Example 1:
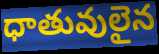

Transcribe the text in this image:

ధాతువులైన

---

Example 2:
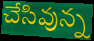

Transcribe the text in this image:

చేసివున్న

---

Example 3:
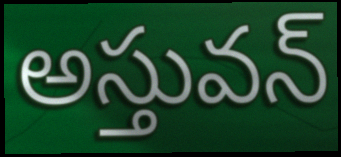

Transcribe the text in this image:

అస్తువన్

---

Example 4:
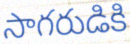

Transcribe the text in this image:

సాగరుడికి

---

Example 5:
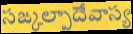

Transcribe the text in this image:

సఙ్కల్పాదేవాస్య